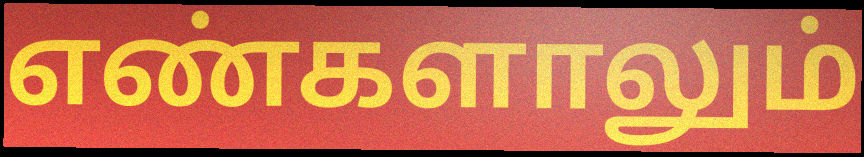
எண்களாலும்